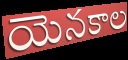
యెనకాల